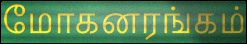
மோகனரங்கம்